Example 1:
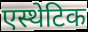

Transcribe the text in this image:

एस्थेटिक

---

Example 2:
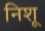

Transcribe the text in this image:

निशू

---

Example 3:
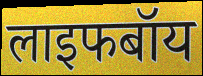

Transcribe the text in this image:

लाइफबॉय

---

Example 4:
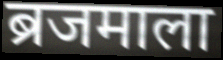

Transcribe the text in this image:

ब्रजमाला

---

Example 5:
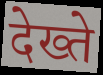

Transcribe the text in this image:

देख्ते